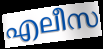
എലീസ